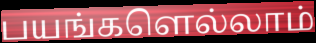
பயங்களெல்லாம்